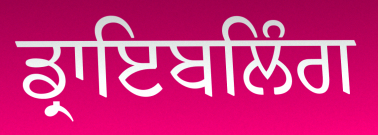
ਡ੍ਰਾਇਬਲਿੰਗ